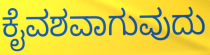
ಕೈವಶವಾಗುವುದು